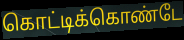
கொட்டிக்கொண்டே